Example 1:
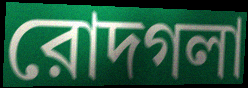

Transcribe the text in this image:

রোদগলা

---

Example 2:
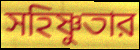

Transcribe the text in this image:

সহিষ্ণুতার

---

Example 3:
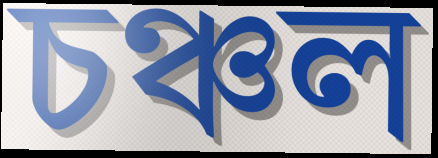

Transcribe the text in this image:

চঞ্চল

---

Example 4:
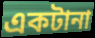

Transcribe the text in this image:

একটানা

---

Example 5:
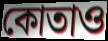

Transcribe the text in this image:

কোতাও